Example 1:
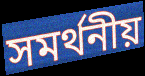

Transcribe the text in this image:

সমর্থনীয়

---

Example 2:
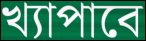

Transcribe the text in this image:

খ্যাপাবে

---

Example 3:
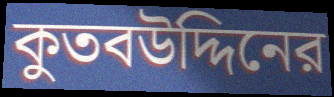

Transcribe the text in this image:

কুতবউদ্দিনের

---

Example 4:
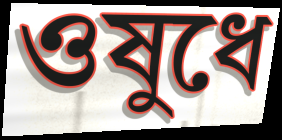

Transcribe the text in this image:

ওষুধে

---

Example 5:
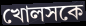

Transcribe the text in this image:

খোলসকে